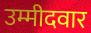
उम्‍मीदवार